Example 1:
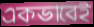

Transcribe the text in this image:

একভাবেই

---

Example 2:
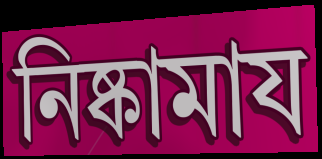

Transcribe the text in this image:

নিষ্কামায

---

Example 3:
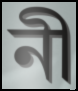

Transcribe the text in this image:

নী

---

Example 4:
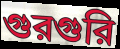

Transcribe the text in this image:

গুরগুরি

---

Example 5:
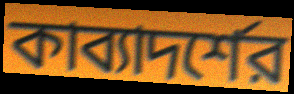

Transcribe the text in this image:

কাব্যাদর্শের